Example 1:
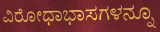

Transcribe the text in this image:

ವಿರೋಧಾಭಾಸಗಳನ್ನೂ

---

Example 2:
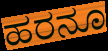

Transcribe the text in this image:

ಹರನೂ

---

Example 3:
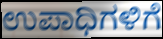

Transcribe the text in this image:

ಉಪಾಧಿಗಳಿಗೆ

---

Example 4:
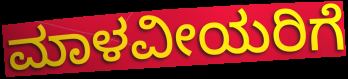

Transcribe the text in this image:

ಮಾಳವೀಯರಿಗೆ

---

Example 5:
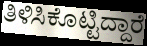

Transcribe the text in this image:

ತಿಳಿಸಿಕೊಟ್ಟಿದ್ದಾರೆ